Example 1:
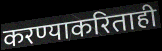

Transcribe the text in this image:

करण्याकरिताही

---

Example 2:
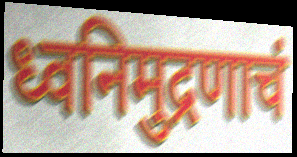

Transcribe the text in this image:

ध्वनिमुद्रणाचं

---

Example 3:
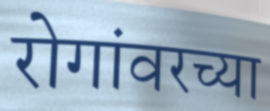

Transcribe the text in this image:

रोगांवरच्या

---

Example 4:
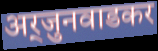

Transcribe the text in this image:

अर्जुनवाडकर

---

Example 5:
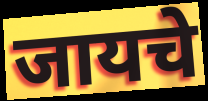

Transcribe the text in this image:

जायचे